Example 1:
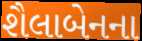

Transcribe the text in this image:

શૈલાબેનના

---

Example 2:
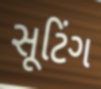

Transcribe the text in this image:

સૂટિંગ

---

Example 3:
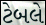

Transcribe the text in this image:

ટેબલે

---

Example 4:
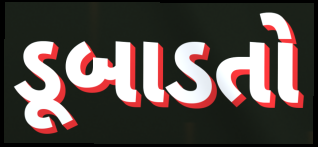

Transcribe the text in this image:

ડૂબાડતો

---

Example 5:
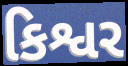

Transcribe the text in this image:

કિશ્વર